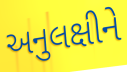
અનુલક્ષીને